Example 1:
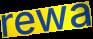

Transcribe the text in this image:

rewa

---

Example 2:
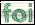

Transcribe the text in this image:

foi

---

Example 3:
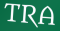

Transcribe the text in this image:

TRA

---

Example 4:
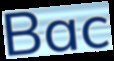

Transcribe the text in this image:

Bac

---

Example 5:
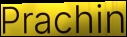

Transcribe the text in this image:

Prachin